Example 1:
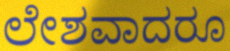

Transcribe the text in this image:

ಲೇಶವಾದರೂ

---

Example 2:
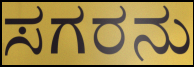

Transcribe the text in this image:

ಸಗರನು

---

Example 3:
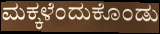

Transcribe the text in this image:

ಮಕ್ಕಳೆಂದುಕೊಂಡು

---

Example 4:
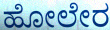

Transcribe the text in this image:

ಹೋಲೇರ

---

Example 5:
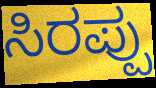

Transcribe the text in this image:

ಸಿರಪ್ಪು